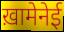
ख़ामेनेई